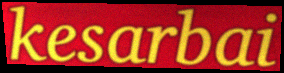
kesarbai